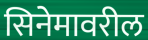
सिनेमावरील